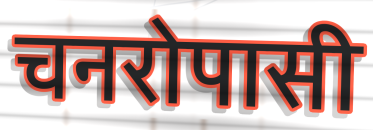
चनरोपासी